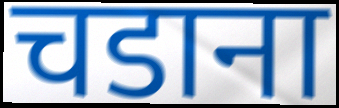
चडाना